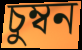
চুম্বন